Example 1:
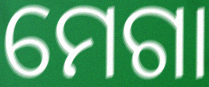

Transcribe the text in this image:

ମେଗା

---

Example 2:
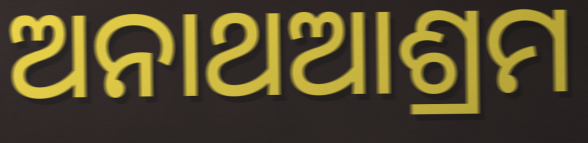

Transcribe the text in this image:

ଅନାଥଆଶ୍ରମ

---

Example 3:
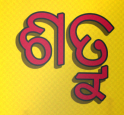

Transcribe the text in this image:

ଶତ୍ରୁ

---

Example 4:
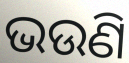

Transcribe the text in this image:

ଭଉଣି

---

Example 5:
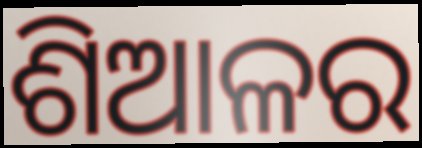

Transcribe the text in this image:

ଶିଆଳର